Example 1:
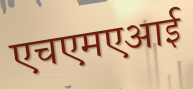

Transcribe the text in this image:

एचएमएआई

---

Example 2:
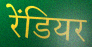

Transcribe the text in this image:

रेंडियर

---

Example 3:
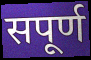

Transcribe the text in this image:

सपूर्ण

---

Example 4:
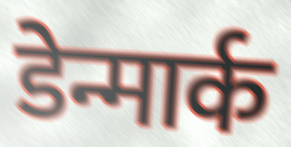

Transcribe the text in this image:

डेन्मार्क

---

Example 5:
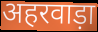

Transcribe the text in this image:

अहरवाड़ा